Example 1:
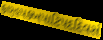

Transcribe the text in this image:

કણ્હપક્ખપાટિપદદિવસં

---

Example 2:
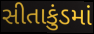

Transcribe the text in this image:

સીતાકુંડમાં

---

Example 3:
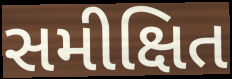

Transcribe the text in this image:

સમીક્ષિત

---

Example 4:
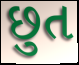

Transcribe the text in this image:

છુત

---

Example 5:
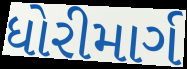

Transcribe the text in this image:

ધોરીમાર્ગ